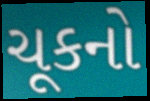
ચૂકનો